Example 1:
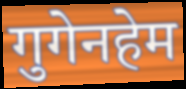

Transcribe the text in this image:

गुगेनहेम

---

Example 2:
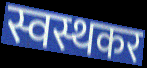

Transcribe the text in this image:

स्वस्थकर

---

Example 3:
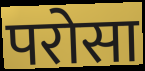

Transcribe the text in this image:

परोसा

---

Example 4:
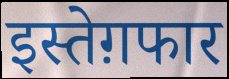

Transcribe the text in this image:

इस्तेग़फार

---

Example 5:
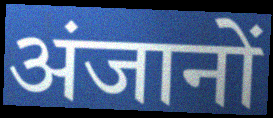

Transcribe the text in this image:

अंजानों